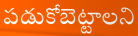
పడుకోబెట్టాలని